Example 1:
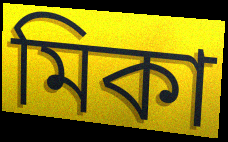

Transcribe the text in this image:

মিকা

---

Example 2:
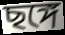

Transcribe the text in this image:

ছঙ্গে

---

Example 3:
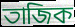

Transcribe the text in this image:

তাজিক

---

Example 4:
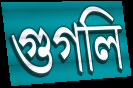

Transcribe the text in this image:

গুগলি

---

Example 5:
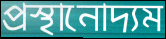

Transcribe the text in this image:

প্রস্থানোদ্যম